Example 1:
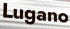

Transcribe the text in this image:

Lugano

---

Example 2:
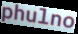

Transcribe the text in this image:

phulno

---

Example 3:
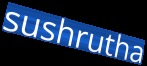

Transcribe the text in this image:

sushrutha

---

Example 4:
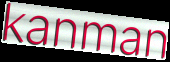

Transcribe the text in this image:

kanman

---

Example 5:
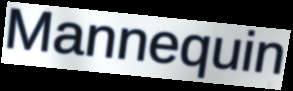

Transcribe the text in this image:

Mannequin